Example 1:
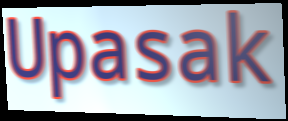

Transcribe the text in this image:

Upasak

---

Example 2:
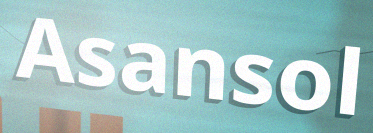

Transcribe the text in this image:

Asansol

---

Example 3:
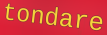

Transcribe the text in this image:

tondare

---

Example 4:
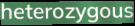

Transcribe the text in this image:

heterozygous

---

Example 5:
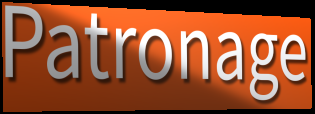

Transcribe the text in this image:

Patronage